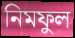
নিমফুল